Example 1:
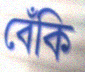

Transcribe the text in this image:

বেঁকি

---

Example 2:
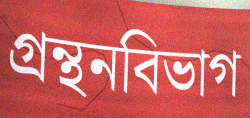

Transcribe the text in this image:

গ্রন্থনবিভাগ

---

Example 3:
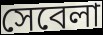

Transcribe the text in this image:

সেবেলা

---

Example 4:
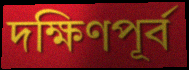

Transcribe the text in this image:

দক্ষিণপূর্ব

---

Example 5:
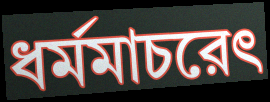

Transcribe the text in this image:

ধর্মমাচরেৎ